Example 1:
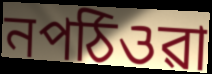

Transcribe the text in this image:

নপঠিওৱা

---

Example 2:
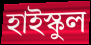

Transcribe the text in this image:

হাইস্কুল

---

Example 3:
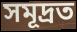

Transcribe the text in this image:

সমূদ্ৰত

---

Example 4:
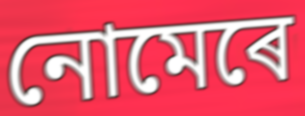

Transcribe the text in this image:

নোমেৰে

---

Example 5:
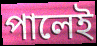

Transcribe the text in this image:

পালেই